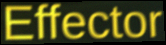
Effector